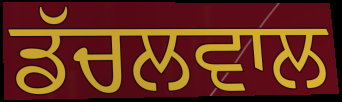
ਡੱਚਲਵਾਲ